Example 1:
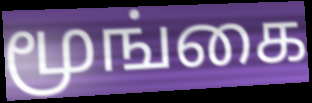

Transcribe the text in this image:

மூங்கை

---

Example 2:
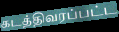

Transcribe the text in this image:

கடத்திவரப்பட்ட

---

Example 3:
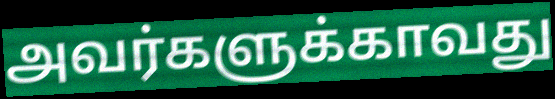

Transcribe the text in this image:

அவர்களுக்காவது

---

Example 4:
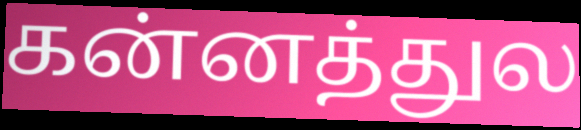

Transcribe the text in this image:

கன்னத்துல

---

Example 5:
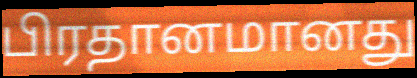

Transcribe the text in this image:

பிரதானமானது